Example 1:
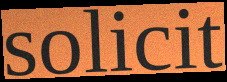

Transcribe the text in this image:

solicit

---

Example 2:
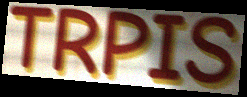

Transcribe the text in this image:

TRPIS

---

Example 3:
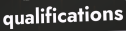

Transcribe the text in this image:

qualifications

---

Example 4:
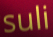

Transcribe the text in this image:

suli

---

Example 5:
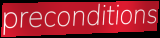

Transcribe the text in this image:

preconditions